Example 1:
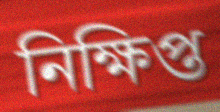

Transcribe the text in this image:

নিক্ষিপ্ত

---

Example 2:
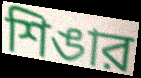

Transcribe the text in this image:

শিঙার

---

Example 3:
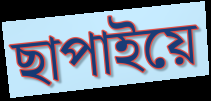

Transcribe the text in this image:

ছাপাইয়ে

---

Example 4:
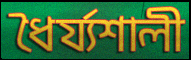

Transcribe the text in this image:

ধৈর্য্যশালী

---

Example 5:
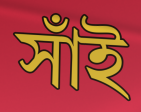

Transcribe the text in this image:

সাঁই